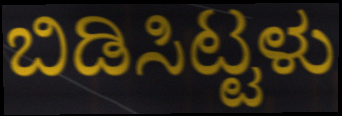
ಬಿಡಿಸಿಟ್ಟಳು